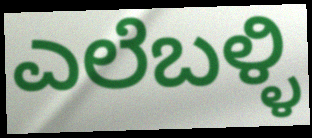
ಎಲೆಬಳ್ಳಿ